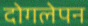
दोगलेपन